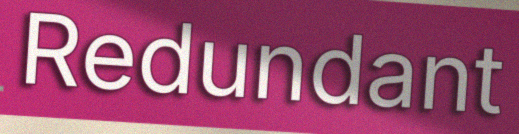
Redundant